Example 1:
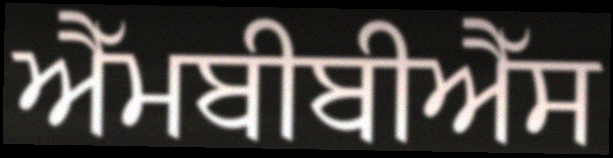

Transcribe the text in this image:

ਐੱਮਬੀਬੀਐੱਸ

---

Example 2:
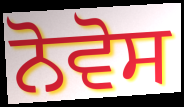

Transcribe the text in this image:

ਨੋਵੋਸ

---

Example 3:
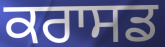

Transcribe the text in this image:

ਕਰਾਸਡ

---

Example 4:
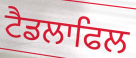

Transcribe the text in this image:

ਟੈਡਲਾਫਿਲ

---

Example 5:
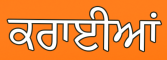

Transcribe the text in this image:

ਕਰਾਈਆਂ